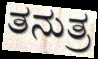
ತನುತ್ರ